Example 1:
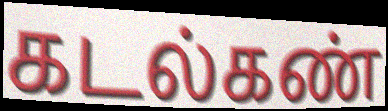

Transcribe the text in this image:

கடல்கண்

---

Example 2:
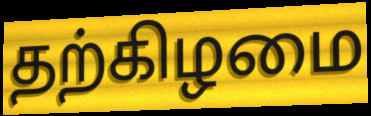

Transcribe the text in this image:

தற்கிழமை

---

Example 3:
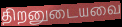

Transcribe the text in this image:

திறனுடையவை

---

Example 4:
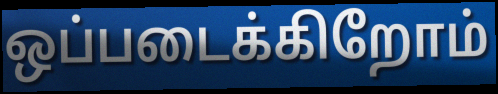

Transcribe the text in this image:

ஒப்படைக்கிறோம்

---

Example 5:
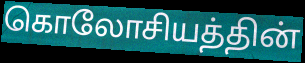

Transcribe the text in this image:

கொலோசியத்தின்